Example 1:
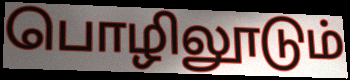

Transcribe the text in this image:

பொழிலூடும்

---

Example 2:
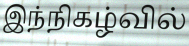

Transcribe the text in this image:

இந்நிகழ்வில்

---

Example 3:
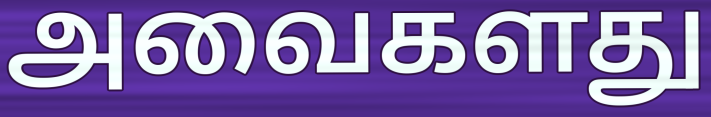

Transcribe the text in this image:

அவைகளது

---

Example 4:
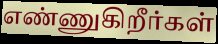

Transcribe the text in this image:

எண்ணுகிறீர்கள்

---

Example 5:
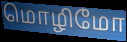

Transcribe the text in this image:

மொழிமோ